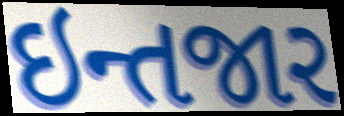
ઇન્તજાર